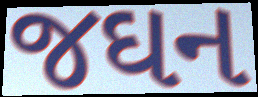
જઘન